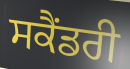
ਸਕੈਂਡਰੀ